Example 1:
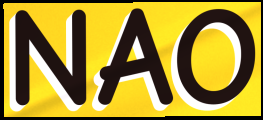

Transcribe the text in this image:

NAO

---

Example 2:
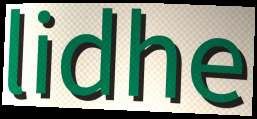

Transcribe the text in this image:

lidhe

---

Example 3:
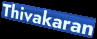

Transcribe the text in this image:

Thivakaran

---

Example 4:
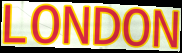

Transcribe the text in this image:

LONDON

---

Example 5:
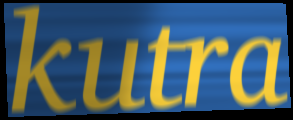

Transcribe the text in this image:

kutra